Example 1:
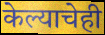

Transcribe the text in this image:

केल्याचेही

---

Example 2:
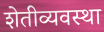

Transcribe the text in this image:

शेतीव्यवस्था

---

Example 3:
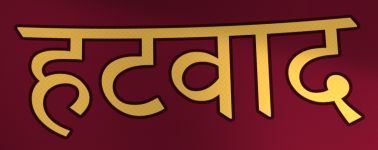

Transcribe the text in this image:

हटवाद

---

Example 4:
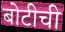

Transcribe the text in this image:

बोटीची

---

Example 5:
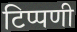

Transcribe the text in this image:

टिप्पणी